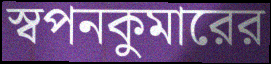
স্বপনকুমারের